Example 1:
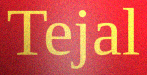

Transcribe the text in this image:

Tejal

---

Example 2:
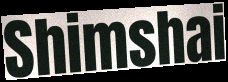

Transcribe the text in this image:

Shimshai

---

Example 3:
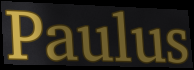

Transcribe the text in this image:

Paulus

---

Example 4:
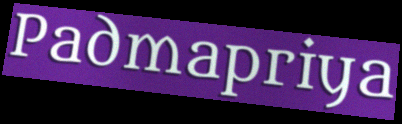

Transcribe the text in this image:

Padmapriya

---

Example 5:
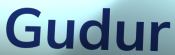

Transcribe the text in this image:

Gudur